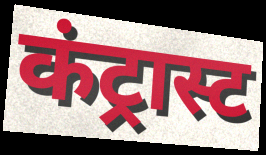
कंट्रास्ट